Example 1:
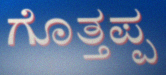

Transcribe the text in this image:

ಗೊತ್ತಪ್ಪ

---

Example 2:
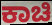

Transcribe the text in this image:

ಕಾಚಿ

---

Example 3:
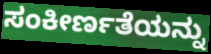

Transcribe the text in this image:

ಸಂಕೀರ್ಣತೆಯನ್ನು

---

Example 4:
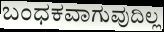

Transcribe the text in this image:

ಬಂಧಕವಾಗುವುದಿಲ್ಲ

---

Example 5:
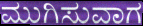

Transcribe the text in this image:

ಮುಗಿಸುವಾಗ